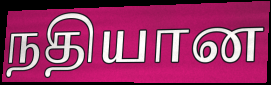
நதியான